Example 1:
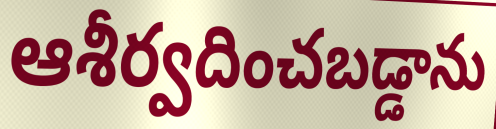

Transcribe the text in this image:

ఆశీర్వదించబడ్డాను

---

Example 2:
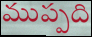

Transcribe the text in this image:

ముప్పది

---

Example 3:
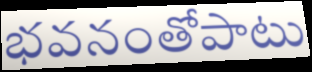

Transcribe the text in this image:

భవనంతోపాటు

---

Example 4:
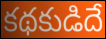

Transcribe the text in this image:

కథకుడిదే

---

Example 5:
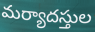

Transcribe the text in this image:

మర్యాదస్తుల